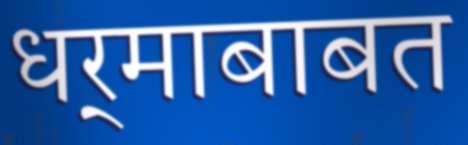
धर्माबाबत